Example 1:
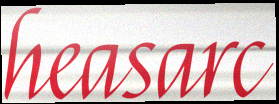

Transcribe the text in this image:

heasarc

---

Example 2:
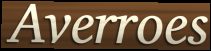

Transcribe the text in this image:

Averroes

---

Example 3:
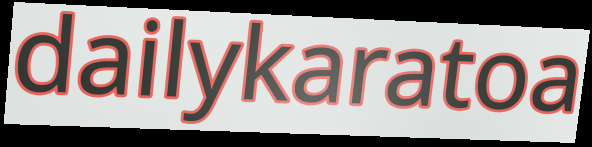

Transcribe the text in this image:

dailykaratoa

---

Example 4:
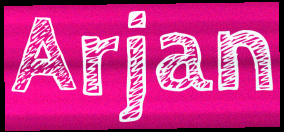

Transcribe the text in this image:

Arjan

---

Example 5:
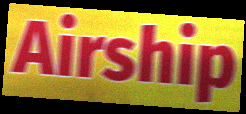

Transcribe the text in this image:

Airship